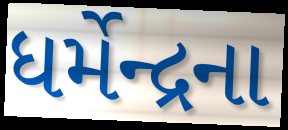
ધર્મેન્દ્રના